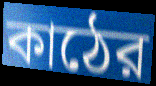
কাঠের